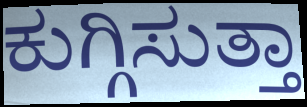
ಕುಗ್ಗಿಸುತ್ತಾ